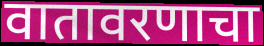
वातावरणाचा